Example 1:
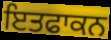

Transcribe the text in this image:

ਇਤਫਾਕਨ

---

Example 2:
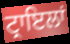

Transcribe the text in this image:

ਟ੍ਰਾਇਲਾਂ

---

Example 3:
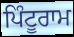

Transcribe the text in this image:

ਪਿੰਟੂਰਾਮ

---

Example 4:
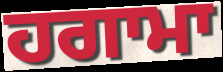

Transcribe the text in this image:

ਹਗਾਮਾ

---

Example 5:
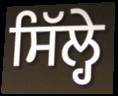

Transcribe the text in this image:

ਸਿੱਲ੍ਹੇ